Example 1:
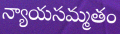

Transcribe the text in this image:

న్యాయసమ్మతం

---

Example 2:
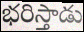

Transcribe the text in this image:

భరిస్తాడు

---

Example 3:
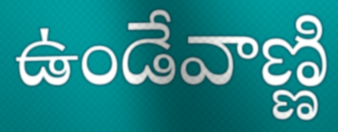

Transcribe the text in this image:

ఉండేవాణ్ణి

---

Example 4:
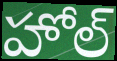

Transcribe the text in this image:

హోల్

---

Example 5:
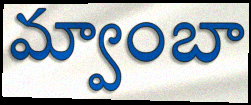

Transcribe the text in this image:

మ్వాంబా